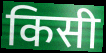
किसी